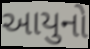
આયુનો